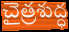
చైత్రశుద్ధ